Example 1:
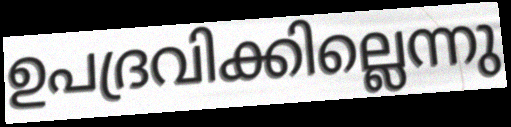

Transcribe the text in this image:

ഉപദ്രവിക്കില്ലെന്നു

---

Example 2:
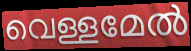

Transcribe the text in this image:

വെള്ളമേൽ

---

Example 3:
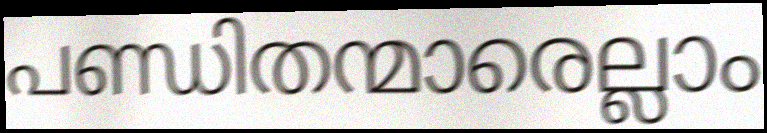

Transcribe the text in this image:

പണ്ഡിതന്മാരെല്ലാം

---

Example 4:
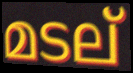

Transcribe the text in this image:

മടല്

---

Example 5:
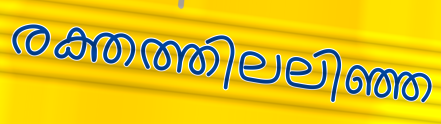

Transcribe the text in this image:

രക്തത്തിലലിഞ്ഞ